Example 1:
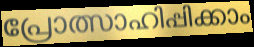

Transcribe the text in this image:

പ്രോത്സാഹിപ്പിക്കാം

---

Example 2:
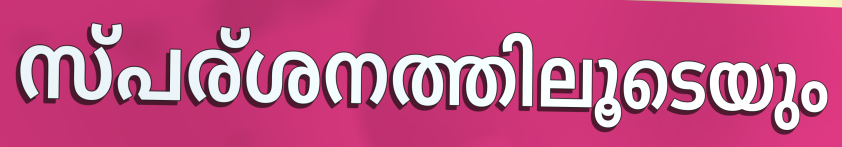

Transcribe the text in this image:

സ്പര്ശനത്തിലൂടെയും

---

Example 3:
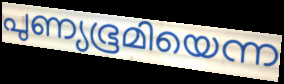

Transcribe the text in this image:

പുണ്യഭൂമിയെന്ന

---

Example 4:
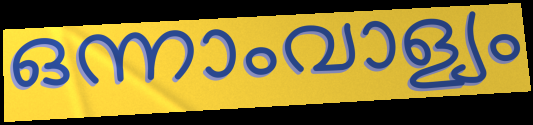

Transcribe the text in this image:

ഒന്നാംവാള്യം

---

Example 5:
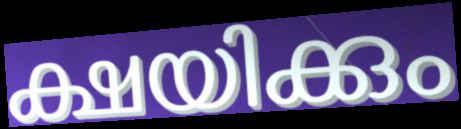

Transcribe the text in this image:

ക്ഷയിക്കും